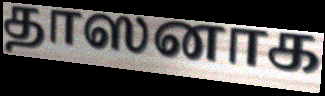
தாஸனாக